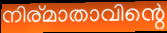
നിര്മാതാവിന്റെ